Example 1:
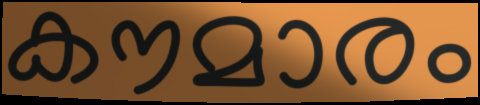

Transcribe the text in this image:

കൗമാരം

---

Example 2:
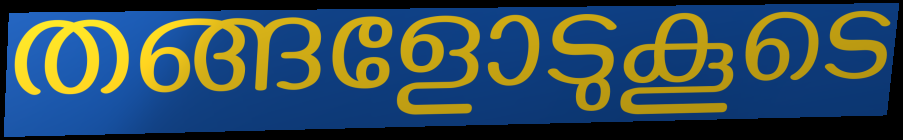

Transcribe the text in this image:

തങ്ങളോടുകൂടെ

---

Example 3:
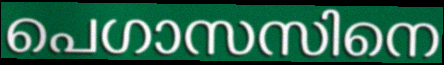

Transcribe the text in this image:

പെഗാസസിനെ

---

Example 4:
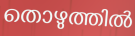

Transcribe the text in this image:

തൊഴുത്തിൽ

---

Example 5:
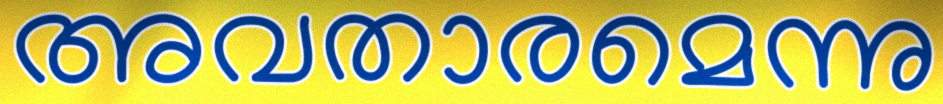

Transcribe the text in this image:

അവതാരമെന്നു